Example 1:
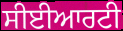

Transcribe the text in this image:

ਸੀਈਆਰਟੀ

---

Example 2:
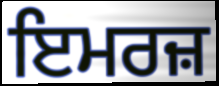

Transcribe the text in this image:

ਇਮਰਜ਼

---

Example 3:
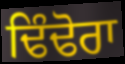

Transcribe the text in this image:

ਢਿੰਢੋਰਾ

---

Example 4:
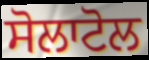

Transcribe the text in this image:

ਸੋਲਾਟੋਲ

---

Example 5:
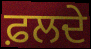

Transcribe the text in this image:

ਫ਼ਲਦੇ